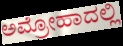
ಅಮ್ರೋಹಾದಲ್ಲಿ